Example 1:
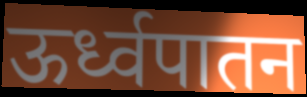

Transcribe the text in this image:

ऊर्ध्वपातन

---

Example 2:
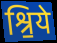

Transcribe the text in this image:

श्रि॒ये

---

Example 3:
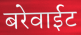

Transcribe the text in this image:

बरेवाईट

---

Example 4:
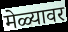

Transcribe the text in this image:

मेळ्यावर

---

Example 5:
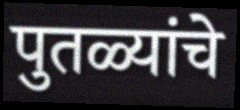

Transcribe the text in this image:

पुतळ्यांचे